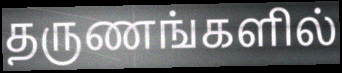
தருணங்களில்